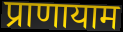
प्राणायाम